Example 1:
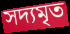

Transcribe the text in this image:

সদ্যমৃত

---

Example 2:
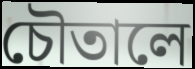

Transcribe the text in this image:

চৌতালে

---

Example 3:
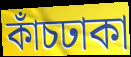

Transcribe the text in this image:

কাঁচঢাকা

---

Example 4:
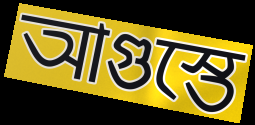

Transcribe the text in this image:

আগুস্তে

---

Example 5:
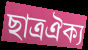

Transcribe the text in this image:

ছাত্রঐক্য